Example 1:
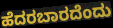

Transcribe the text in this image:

ಹೆದರಬಾರದೆಂದು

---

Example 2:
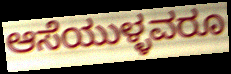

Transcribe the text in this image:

ಆಸೆಯುಳ್ಳವರೂ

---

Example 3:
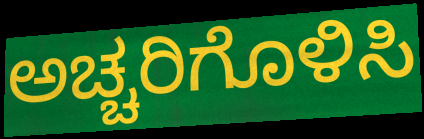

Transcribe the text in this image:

ಅಚ್ಚರಿಗೊಳಿಸಿ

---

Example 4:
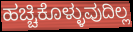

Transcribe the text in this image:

ಹಚ್ಚಿಕೊಳ್ಳುವುದಿಲ್ಲ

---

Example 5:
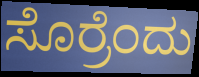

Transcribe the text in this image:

ಸೊರ್ರೆಂದು